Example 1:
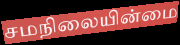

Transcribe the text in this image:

சமநிலையின்மை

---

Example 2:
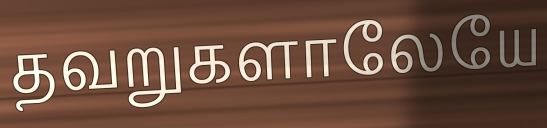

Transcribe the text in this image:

தவறுகளாலேயே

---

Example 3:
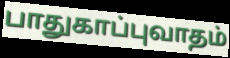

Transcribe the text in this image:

பாதுகாப்புவாதம்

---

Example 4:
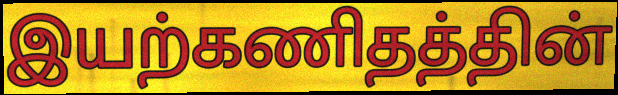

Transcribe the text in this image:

இயற்கணிதத்தின்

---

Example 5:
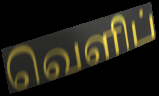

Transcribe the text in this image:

வெளிப்